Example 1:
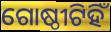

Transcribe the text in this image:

ଗୋଷ୍ଠୀଟିହିଁ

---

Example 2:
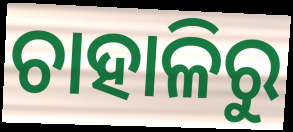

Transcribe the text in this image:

ଚାହାଳିରୁ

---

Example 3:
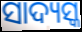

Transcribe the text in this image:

ସାଦ୍ୟସ୍କ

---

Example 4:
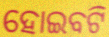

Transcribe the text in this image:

ହୋଇବଟି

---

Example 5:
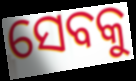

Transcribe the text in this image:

ସେବକୁ